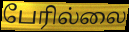
பேரில்லை